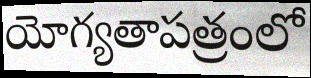
యోగ్యతాపత్రంలో